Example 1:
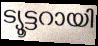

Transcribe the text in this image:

ട്യൂട്ടറായി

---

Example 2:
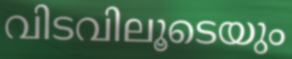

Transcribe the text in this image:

വിടവിലൂടെയും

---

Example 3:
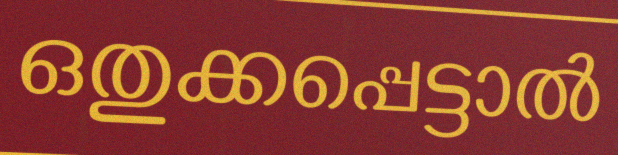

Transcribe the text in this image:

ഒതുക്കപ്പെട്ടാൽ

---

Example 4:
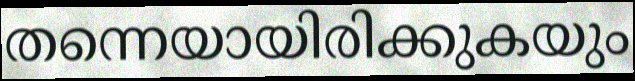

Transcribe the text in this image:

തന്നെയായിരിക്കുകയും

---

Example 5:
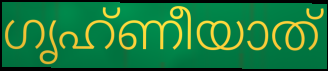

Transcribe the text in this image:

ഗൃഹ്ണീയാത്